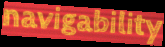
navigability